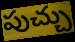
పుచ్చు